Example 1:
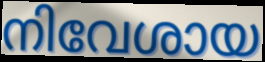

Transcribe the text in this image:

നിവേശായ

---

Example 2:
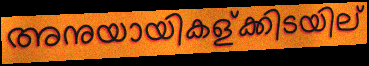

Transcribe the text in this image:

അനുയായികള്ക്കിടയില്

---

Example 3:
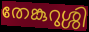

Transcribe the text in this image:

തേങ്കുറുശ്ശി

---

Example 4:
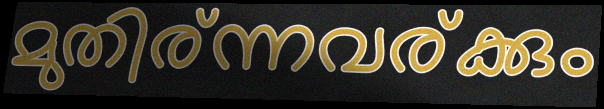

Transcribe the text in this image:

മുതിര്ന്നവര്ക്കും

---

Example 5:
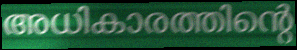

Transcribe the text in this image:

അധികാരത്തിന്റെ